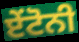
ਏਂਟੋਨੀ